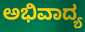
ಅಭಿವಾದ್ಯ